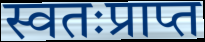
स्वतःप्राप्त